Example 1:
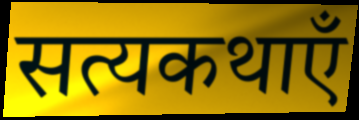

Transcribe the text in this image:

सत्यकथाएँ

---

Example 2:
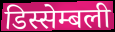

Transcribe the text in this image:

डिस्सेम्बली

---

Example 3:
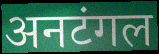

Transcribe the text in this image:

अनटंगल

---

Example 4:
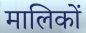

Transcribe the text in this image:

मालिकों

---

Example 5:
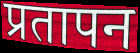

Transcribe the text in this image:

प्रतापन